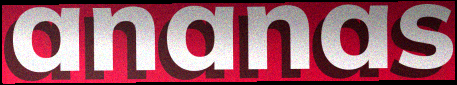
ananas